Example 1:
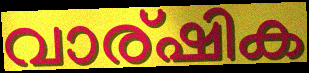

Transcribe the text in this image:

വാര്ഷിക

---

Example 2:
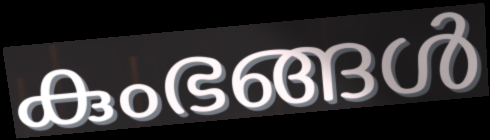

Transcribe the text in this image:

കുംഭങ്ങൾ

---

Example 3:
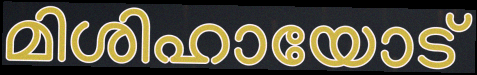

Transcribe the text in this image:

മിശിഹായോട്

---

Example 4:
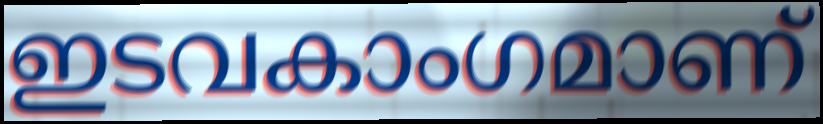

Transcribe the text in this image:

ഇടവകാംഗമാണ്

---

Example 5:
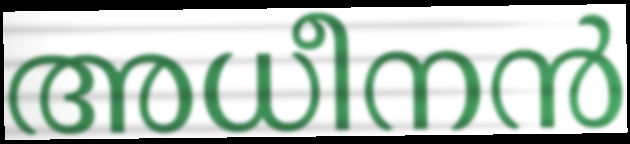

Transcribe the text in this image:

അധീനൻ